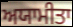
ਅਯਾਮੀਤਾ